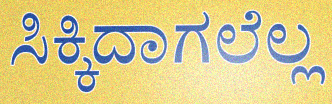
ಸಿಕ್ಕಿದಾಗಲೆಲ್ಲ